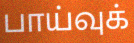
பாய்வுக்